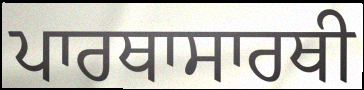
ਪਾਰਥਾਸਾਰਥੀ